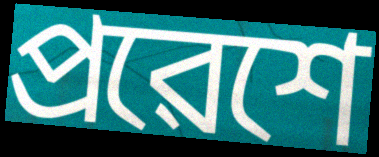
প্ৰৱেশে